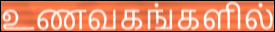
உணவகங்களில்